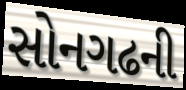
સોનગઢની